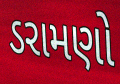
ડરામણો